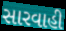
સારવાહી